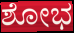
ಶೋಭ